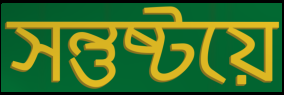
সন্তুষ্টয়ে